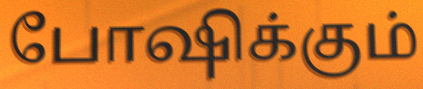
போஷிக்கும்